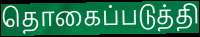
தொகைப்படுத்தி